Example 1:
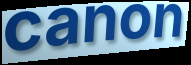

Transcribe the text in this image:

canon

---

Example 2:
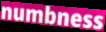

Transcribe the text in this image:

numbness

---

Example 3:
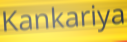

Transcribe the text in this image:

Kankariya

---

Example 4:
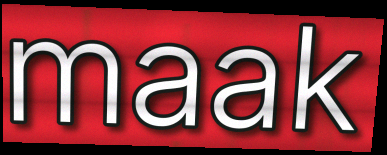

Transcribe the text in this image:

maak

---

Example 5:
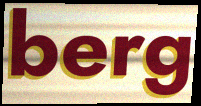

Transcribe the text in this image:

berg